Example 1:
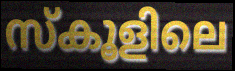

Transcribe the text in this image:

സ്കൂളിലെ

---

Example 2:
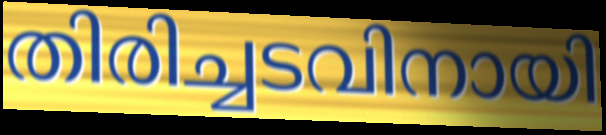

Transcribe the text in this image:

തിരിച്ചടവിനായി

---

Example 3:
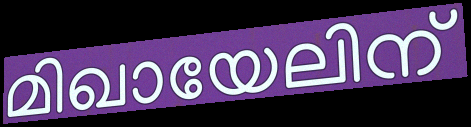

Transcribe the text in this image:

മിഖായേലിന്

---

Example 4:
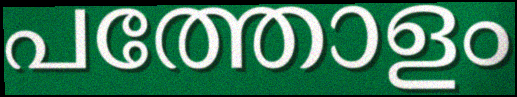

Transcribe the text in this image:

പത്തോളം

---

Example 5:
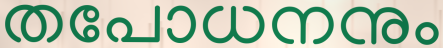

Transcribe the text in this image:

തപോധനനും